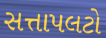
સત્તાપલટો